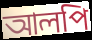
আলপি